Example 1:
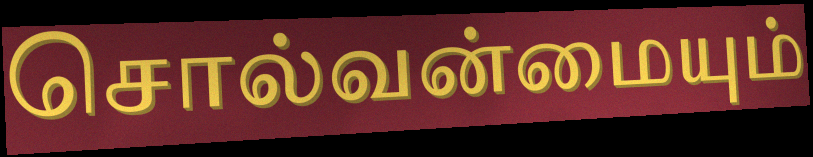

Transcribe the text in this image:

சொல்வன்மையும்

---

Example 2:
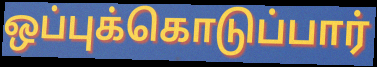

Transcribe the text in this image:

ஒப்புக்கொடுப்பார்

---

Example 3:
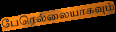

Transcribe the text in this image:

பேரெல்லையாகவும்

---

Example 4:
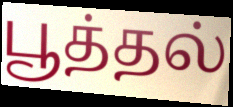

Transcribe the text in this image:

பூத்தல்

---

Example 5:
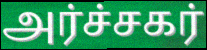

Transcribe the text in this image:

அர்ச்சகர்